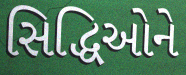
સિદ્ધિઓને